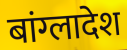
बांग्‍लादेश